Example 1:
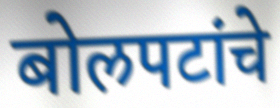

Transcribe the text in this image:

बोलपटांचे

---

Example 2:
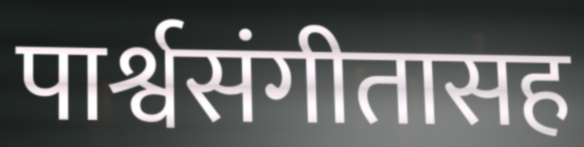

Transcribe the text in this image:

पार्श्वसंगीतासह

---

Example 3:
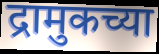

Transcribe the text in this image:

द्रामुकच्या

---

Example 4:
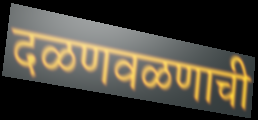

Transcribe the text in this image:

दळणवळणाची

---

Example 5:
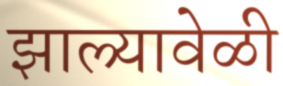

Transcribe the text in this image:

झाल्यावेळी